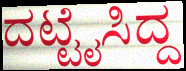
ದಟ್ಟೈಸಿದ್ದ